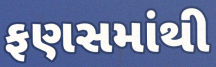
ફણસમાંથી